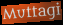
Muttagi